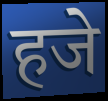
हजे